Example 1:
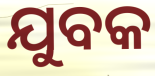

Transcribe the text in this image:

ଯୁବକ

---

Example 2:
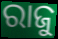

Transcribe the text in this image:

ରାଜୁ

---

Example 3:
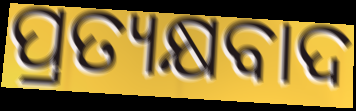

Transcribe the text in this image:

ପ୍ରତ୍ୟକ୍ଷବାଦ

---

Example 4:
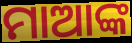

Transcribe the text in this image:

ମାଆଙ୍କ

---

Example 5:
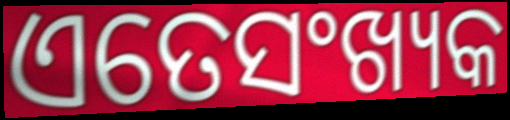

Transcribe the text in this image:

ଏତେସଂଖ୍ୟକ